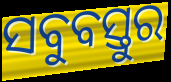
ସବୁବସ୍ତୁର